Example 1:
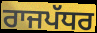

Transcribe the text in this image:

ਰਾਜਪੱਧਰ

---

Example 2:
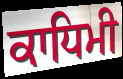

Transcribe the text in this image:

ਕਾਧਿਮੀ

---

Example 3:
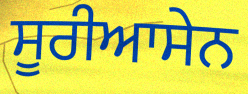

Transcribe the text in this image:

ਸੂਰੀਆਸੇਨ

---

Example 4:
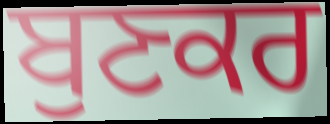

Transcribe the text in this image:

ਬੁਣਕਰ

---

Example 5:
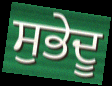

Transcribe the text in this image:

ਸੁਭੇਦੂ